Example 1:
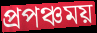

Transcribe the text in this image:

প্রপঞ্চময়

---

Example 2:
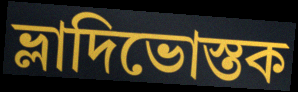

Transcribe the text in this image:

ভ্লাদিভোস্তক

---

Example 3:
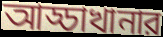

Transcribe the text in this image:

আড্ডাখানার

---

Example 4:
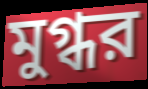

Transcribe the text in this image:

মুগ্ধর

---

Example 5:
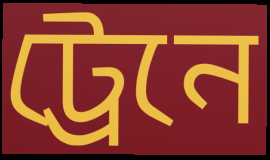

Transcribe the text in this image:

ট্রেনে